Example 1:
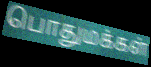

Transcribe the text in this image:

பொதுமக்கள்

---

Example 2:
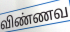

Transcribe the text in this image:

விண்ணவ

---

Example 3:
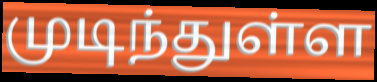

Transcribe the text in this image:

முடிந்துள்ள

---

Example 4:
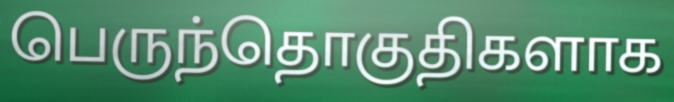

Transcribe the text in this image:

பெருந்தொகுதிகளாக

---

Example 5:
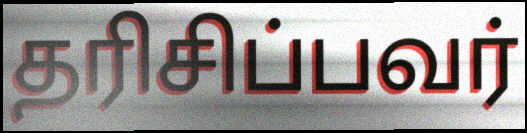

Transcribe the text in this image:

தரிசிப்பவர்